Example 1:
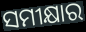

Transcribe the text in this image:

ସମୀକ୍ଷାର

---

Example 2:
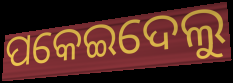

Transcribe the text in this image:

ପକେଇଦେଲୁ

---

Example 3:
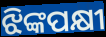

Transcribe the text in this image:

ଝିଙ୍କପକ୍ଷୀ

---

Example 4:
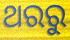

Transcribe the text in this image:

ଥରରୁ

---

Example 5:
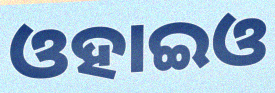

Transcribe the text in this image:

ଓହାଇଓ